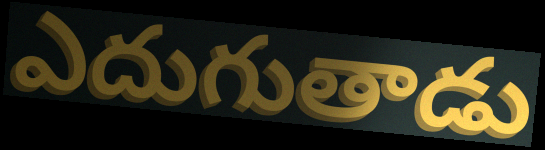
ఎదుగుతాడు